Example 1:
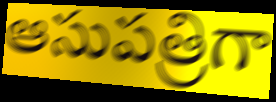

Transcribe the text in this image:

ఆసుపత్రిగా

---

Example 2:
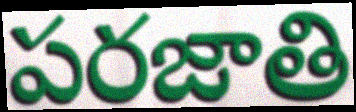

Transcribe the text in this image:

పరజాతి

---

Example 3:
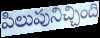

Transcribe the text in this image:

పిలుపునిచ్చింది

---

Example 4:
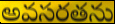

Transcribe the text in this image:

అవసరతను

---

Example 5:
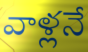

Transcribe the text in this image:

వాళ్లనే